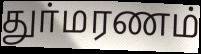
துர்மரணம்